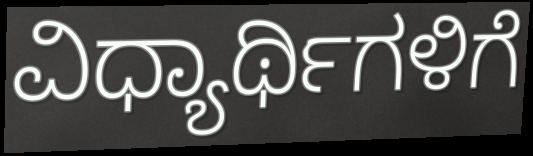
ವಿಧ್ಯಾರ್ಥಿಗಳಿಗೆ